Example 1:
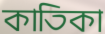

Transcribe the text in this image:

কাতিকা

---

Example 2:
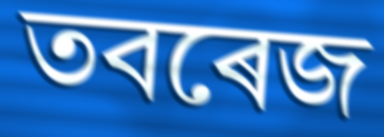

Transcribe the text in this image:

তবৰেজ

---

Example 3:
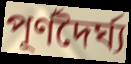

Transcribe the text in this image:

পূৰ্ণদৈৰ্ঘ্য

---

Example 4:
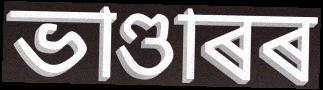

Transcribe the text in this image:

ভাণ্ডাৰৰ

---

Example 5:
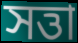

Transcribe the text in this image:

সত্তা